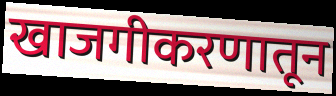
खाजगीकरणातून